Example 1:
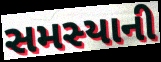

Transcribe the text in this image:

સમસ્યાની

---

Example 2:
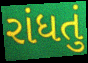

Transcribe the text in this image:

રાંધતું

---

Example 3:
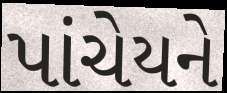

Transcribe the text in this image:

પાંચેયને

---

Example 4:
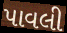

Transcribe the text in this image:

પાવલી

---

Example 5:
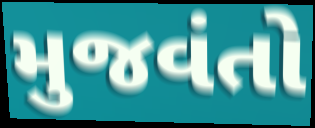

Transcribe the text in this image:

મુજવંતો